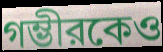
গম্ভীরকেও